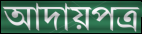
আদায়পত্র